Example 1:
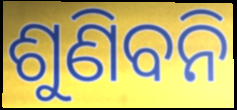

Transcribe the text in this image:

ଶୁଣିବନି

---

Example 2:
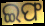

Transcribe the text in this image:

ଇଫ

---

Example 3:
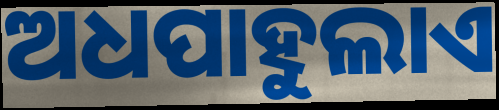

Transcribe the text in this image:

ଅଧପାହୁଲାଏ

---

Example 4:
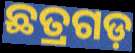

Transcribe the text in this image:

ଛତ୍ରଗଡ଼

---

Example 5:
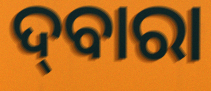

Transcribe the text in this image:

ଦ୍‌ବାରା